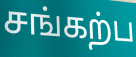
சங்கற்ப